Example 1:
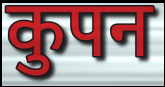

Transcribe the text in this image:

कुपन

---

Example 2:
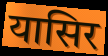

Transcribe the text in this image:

यासिर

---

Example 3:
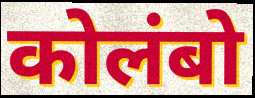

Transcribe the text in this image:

कोलंबो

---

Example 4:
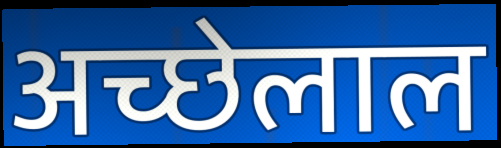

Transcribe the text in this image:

अच्छेलाल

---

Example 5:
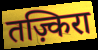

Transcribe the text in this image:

तज़्किरा